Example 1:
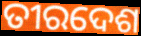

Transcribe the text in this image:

ତୀରଦେଶ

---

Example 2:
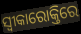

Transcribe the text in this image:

ସ୍ଵୀକାରୋକ୍ତିରେ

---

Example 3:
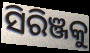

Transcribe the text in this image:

ସିରିଞ୍ଜକୁ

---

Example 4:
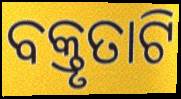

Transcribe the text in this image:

ବକ୍ତୃତାଟି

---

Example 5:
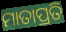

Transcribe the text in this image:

ମାତାପ୍ରତି